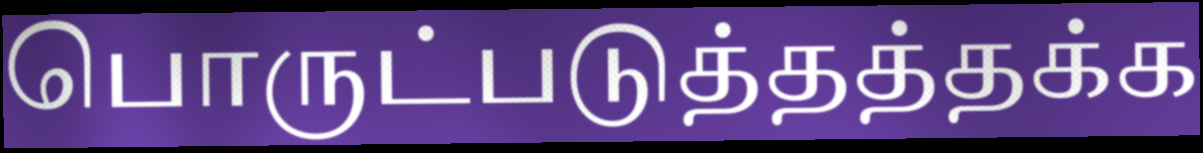
பொருட்படுத்தத்தக்க